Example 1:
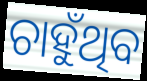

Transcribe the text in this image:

ଚାହୁଁଥିବ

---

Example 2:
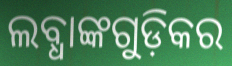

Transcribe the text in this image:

ଲବ୍ଧାଙ୍କଗୁଡ଼ିକର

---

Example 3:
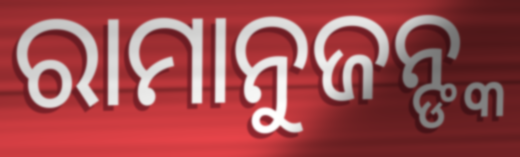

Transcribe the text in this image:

ରାମାନୁଜନ୍ଙ୍କ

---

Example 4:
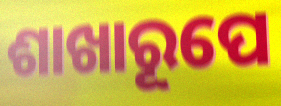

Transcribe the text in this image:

ଶାଖାରୂପେ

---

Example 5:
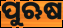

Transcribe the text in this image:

ପୁଋଷ